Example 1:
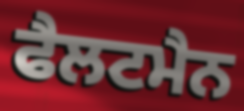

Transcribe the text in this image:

ਫੈਲਟਮੈਨ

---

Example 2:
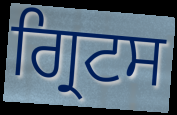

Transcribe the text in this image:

ਗ੍ਰਿਟਸ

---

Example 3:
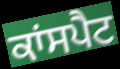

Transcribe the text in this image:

ਕਾਂਸਪੈਟ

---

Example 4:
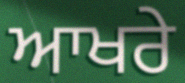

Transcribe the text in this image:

ਆਖਰੇ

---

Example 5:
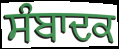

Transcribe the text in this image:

ਸੰਬਾਦਕ